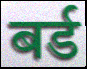
बर्ड